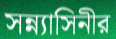
সন্ন্যাসিনীর